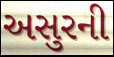
અસુરની